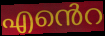
എൻെറ